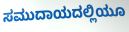
ಸಮುದಾಯದಲ್ಲಿಯೂ